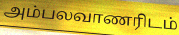
அம்பலவாணரிடம்